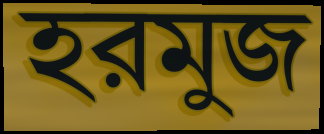
হরমুজ